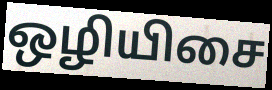
ஒழியிசை